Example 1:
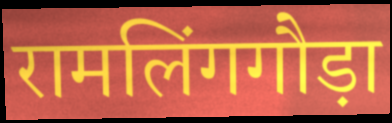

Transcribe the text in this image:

रामलिंगगौड़ा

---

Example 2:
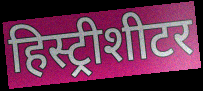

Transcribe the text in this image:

हिस्ट्रीशीटर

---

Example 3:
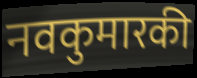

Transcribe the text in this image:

नवकुमारकी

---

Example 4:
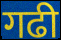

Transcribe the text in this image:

गढी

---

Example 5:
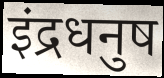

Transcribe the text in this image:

इंद्रधनुष